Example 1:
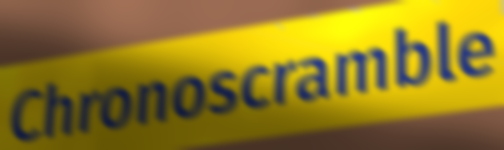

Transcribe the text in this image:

Chronoscramble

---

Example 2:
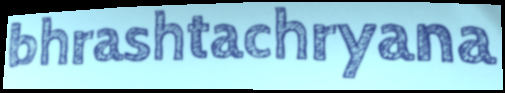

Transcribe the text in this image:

bhrashtachryana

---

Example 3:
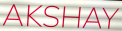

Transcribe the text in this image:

AKSHAY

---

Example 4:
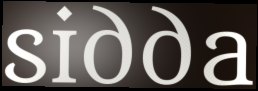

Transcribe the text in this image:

sidda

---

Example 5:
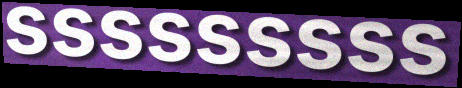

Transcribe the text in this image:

sssssssss